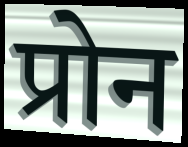
प्रोन